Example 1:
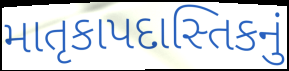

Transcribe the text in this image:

માતૃકાપદાસ્તિકનું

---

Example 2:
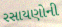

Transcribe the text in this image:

રસાયણોની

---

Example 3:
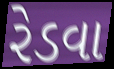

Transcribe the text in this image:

રેડવા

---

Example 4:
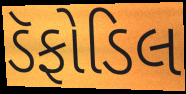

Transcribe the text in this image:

ડૅફોડિલ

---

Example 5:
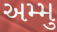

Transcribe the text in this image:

અમ્મુ